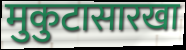
मुकुटासारखा